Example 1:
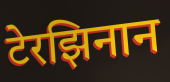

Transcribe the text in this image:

टेरझिनान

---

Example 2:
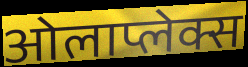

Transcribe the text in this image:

ओलाप्लेक्स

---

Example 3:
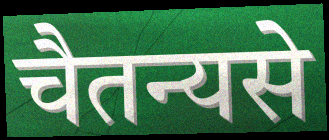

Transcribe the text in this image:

चैतन्यसे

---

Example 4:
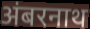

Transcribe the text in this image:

अंबरनाथ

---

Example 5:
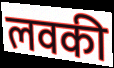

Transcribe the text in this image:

लवकी